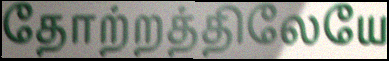
தோற்றத்திலேயே